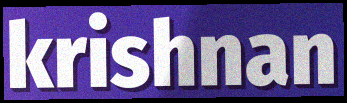
krishnan